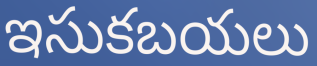
ఇసుకబయలు